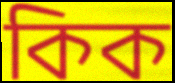
কিক